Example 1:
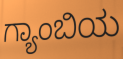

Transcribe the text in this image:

ಗ್ಯಾಂಬಿಯ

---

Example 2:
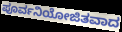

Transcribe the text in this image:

ಪೂರ್ವನಿಯೋಜಿತವಾದ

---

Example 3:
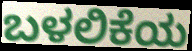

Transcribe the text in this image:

ಬಳಲಿಕೆಯ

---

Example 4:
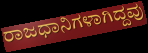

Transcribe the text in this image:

ರಾಜಧಾನಿಗಳಾಗಿದ್ದವು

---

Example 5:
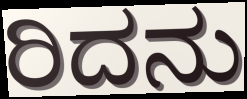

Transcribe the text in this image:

ರಿದನು